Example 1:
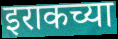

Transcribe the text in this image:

इराकच्या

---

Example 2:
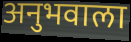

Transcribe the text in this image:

अनुभवाला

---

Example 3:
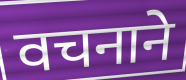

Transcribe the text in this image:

वचनाने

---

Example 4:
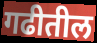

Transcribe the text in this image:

गढीतील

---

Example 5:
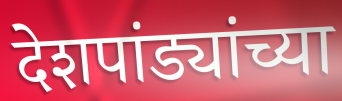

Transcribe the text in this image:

देशपांड्यांच्या